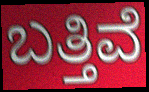
ಬತ್ತಿವೆ